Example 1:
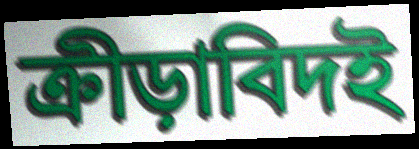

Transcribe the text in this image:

ক্রীড়াবিদই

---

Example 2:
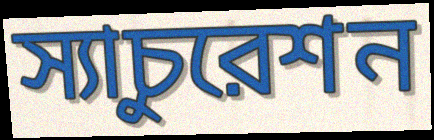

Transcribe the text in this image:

স্যাচুরেশন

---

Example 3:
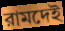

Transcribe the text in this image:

রামদেই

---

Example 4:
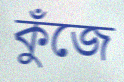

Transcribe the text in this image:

কুঁজে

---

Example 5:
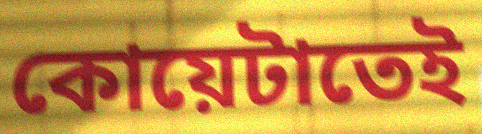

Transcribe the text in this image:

কোয়েটাতেই